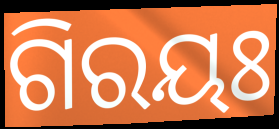
ଗିରୟଃ